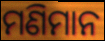
ମଣିମାନ